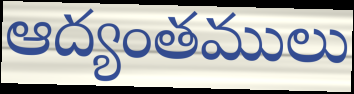
ఆద్యంతములు